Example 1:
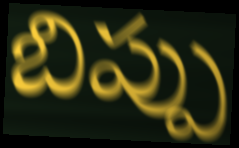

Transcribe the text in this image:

బిప్పు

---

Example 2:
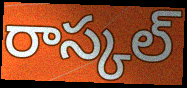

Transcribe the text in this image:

రాస్కల్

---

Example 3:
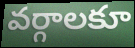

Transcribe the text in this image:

వర్గాలకూ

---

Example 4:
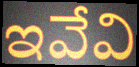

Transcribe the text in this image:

ఇవేవి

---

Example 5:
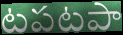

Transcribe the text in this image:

టపటపా